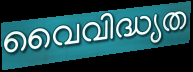
വൈവിദ്ധ്യത